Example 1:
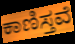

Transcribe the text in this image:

ಕಾಣಿಸ್ತವೆ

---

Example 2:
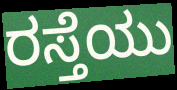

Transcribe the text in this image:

ರಸ್ತೆಯು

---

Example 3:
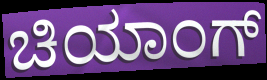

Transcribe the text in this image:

ಚಿಯಾಂಗ್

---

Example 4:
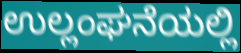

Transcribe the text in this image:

ಉಲ್ಲಂಘನೆಯಲ್ಲಿ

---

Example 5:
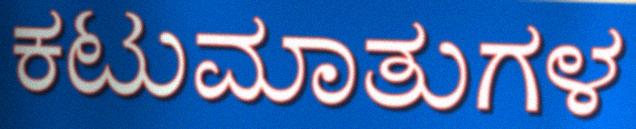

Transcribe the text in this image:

ಕಟುಮಾತುಗಳ